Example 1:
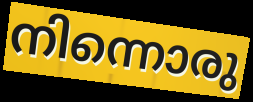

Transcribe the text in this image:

നിന്നൊരു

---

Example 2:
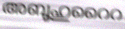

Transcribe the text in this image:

അബൂഹുറൈറ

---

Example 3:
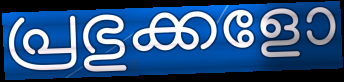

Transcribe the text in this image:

പ്രഭുക്കളോ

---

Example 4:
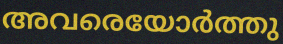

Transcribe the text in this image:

അവരെയോർത്തു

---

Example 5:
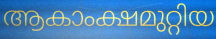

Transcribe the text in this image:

ആകാംക്ഷമുറ്റിയ